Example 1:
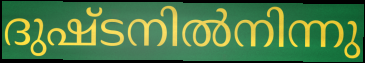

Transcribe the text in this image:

ദുഷ്ടനിൽനിന്നു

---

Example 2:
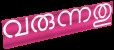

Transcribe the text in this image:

വരുന്നതു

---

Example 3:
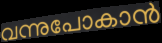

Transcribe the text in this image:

വന്നുപോകാൻ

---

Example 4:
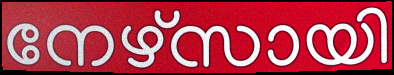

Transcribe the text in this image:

നേഴ്സായി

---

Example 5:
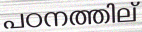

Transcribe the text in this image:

പഠനത്തില്